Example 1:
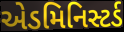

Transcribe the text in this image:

એડમિનિસ્ટર્ડ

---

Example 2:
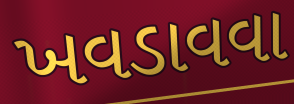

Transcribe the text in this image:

ખવડાવવા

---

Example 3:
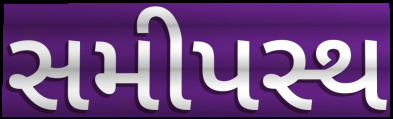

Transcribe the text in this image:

સમીપસ્થ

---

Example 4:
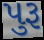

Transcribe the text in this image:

પુરૂ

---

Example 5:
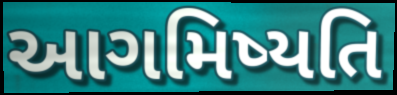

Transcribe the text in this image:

આગમિષ્યતિ